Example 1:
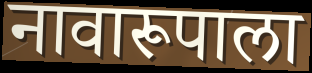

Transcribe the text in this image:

नावारूपाला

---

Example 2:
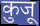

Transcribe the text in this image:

कुजू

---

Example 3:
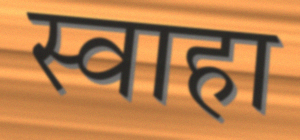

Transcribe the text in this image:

स्वाहा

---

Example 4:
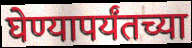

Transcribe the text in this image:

घेण्यापर्यंतच्या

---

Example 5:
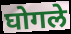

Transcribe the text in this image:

घोगले